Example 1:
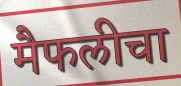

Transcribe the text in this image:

मैफलीचा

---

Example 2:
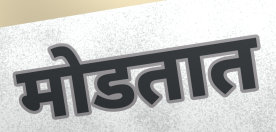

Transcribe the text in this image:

मोडतात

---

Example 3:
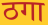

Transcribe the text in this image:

ठगा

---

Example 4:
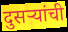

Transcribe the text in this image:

दुसऱ्यांची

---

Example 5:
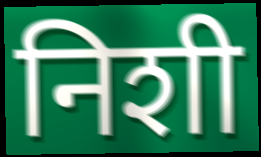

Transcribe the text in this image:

निशी